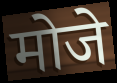
मोजे